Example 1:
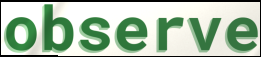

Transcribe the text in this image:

observe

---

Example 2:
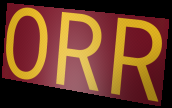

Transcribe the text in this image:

ORR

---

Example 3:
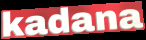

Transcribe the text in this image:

kadana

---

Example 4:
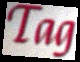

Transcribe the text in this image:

Tag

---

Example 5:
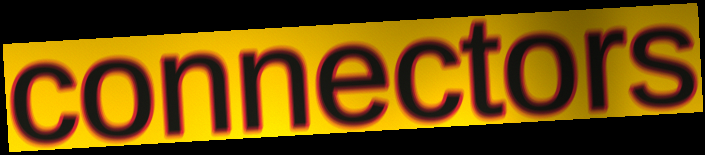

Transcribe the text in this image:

connectors